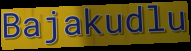
Bajakudlu